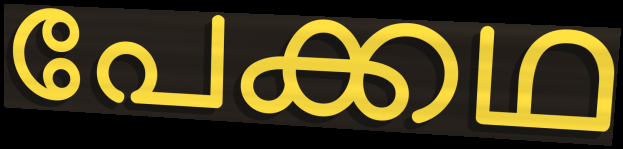
പേക്കഥ